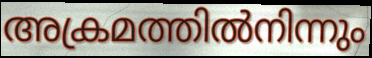
അക്രമത്തിൽനിന്നും